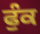
ਫੁੰਕ